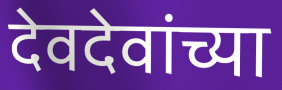
देवदेवांच्या